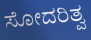
ಸೋದರಿತ್ವ